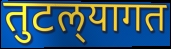
तुटल्यागत